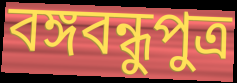
বঙ্গবন্ধুপুত্র